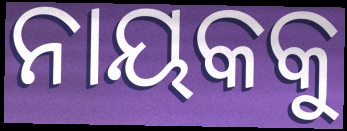
ନାୟକକୁ